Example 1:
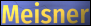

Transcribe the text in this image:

Meisner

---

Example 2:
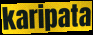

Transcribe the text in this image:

karipata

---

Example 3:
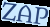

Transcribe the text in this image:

ZAP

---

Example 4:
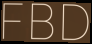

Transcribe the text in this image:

FBD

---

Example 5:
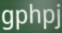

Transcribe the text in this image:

gphpj